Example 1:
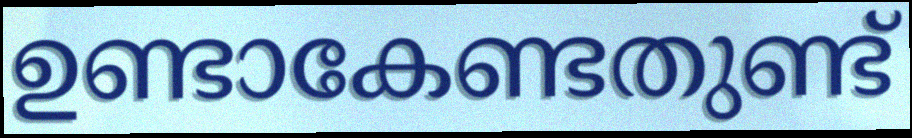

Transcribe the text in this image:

ഉണ്ടാകേണ്ടതുണ്ട്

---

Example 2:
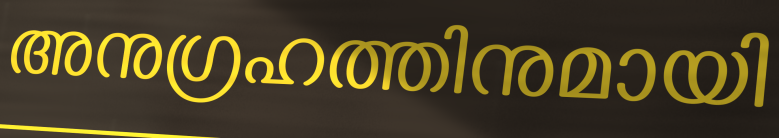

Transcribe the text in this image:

അനുഗ്രഹത്തിനുമായി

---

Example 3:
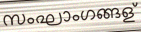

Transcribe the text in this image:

സംഘാംഗങ്ങള്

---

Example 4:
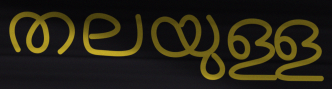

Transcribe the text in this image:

തലയുള്ള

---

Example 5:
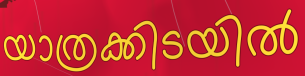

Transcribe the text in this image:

യാത്രക്കിടയിൽ